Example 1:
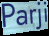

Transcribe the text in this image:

Parji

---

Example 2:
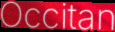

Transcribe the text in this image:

Occitan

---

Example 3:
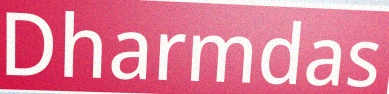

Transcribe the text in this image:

Dharmdas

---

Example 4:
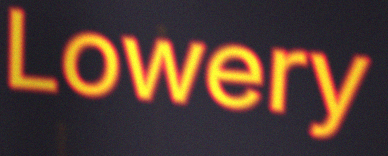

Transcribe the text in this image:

Lowery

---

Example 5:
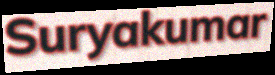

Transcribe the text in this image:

Suryakumar